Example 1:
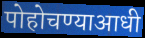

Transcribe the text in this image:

पोहोचण्याआधी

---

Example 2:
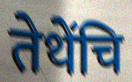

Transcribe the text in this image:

तेथेंचि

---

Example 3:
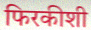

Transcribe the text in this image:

फिरकीशी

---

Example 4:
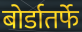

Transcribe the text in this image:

बोर्डातर्फे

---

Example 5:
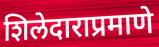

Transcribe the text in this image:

शिलेदाराप्रमाणे